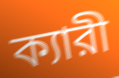
ক্যারী